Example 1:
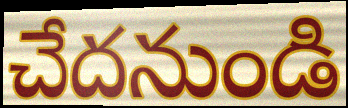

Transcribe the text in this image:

చేదనుండి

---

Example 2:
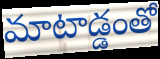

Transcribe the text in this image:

మాటాడ్డంతో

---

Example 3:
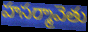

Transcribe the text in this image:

హసర్మావెతు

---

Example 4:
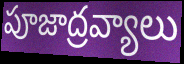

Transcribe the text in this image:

పూజాద్రవ్యాలు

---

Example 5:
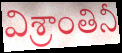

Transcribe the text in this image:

విశ్రాంతినీ